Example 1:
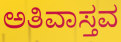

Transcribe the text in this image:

ಅತಿವಾಸ್ತವ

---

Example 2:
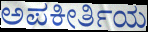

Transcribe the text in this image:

ಅಪಕೀರ್ತಿಯ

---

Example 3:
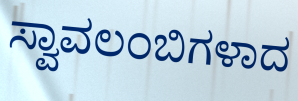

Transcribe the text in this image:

ಸ್ವಾವಲಂಬಿಗಳಾದ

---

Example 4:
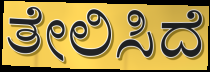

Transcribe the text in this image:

ತೇಲಿಸಿದೆ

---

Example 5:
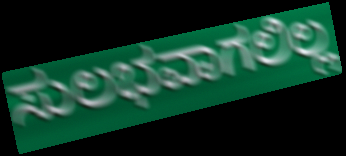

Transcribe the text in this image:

ಸುಲಭವಾಗಲಿಲ್ಲ